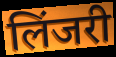
लिंजरी